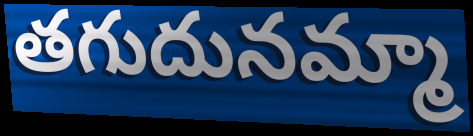
తగుదునమ్మా